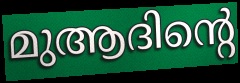
മുആദിന്റെ